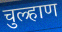
चुल्हाण